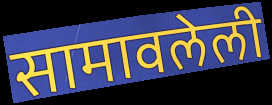
सामावलेली